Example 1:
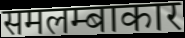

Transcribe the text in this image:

समलम्बाकार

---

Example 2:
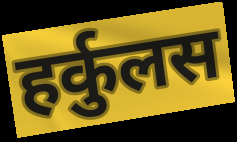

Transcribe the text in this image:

हर्कुलस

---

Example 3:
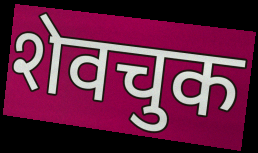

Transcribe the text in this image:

शेवचुक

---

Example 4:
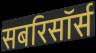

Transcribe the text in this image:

सबरिसॉर्स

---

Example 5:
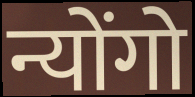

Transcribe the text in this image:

न्योंगो